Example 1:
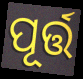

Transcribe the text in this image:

ପୂର୍ତ୍ତ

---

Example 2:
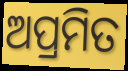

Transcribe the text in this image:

ଅପ୍ରମିତ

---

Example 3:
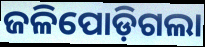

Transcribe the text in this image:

ଜଳିପୋଡ଼ିଗଲା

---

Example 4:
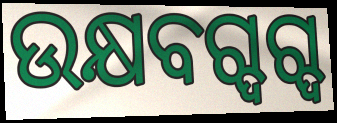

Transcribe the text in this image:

ଉକ୍ଷବଗ୍ଦଗ୍ଦ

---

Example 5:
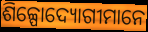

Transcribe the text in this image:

ଶିଳ୍ପୋଦ୍ୟୋଗୀମାନେ